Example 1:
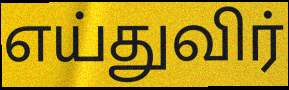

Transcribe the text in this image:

எய்துவிர்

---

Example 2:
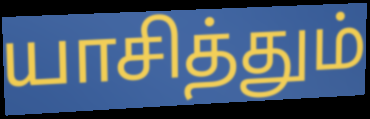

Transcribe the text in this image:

யாசித்தும்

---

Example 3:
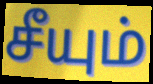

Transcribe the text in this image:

சீயும்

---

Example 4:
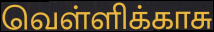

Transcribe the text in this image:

வெள்ளிக்காசு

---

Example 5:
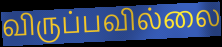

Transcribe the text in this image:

விருப்பவில்லை